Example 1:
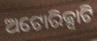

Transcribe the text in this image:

ଅଟୋରିକ୍ସାଟି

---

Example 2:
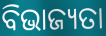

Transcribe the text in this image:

ବିଭାଜ୍ୟତା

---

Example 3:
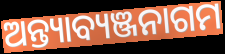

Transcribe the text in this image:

ଅନ୍ତ୍ୟାବ୍ୟଞ୍ଜନାଗମ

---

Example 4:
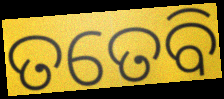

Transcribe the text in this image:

ତତେବି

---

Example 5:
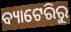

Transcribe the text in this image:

ବ୍ୟାଟେରିରୁ